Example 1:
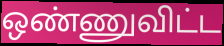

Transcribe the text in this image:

ஒண்ணுவிட்ட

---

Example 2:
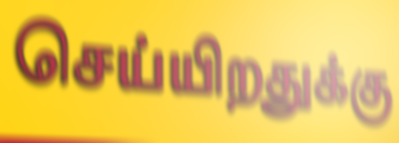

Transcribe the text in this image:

செய்யிறதுக்கு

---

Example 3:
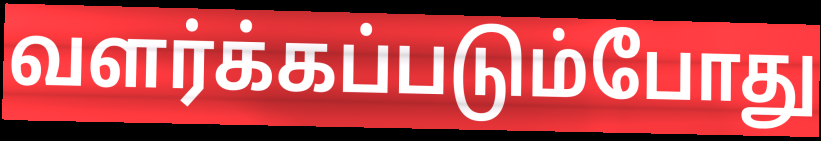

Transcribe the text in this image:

வளர்க்கப்படும்போது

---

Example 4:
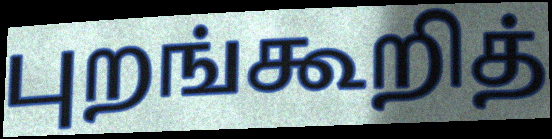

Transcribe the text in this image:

புறங்கூறித்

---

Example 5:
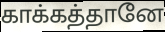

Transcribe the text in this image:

காக்கத்தானே